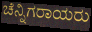
ಚೆನ್ನಿಗರಾಯರು